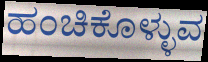
ಹಂಚಿಕೊಳ್ಳುವ